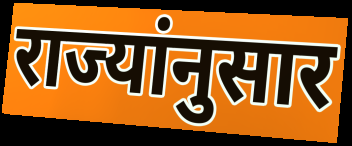
राज्यांनुसार